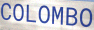
COLOMBO